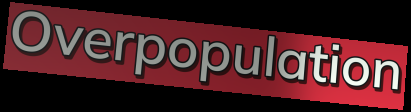
Overpopulation